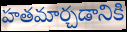
హతమార్చడానికి